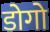
डोगो